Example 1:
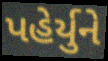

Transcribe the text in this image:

પહેર્યુને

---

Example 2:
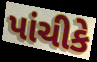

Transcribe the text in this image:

પાંચીકે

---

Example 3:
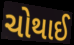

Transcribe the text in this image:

ચોથાઈ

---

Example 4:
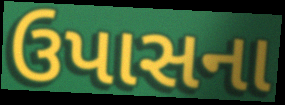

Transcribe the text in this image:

ઉપાસના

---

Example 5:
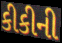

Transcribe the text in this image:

કીકીની